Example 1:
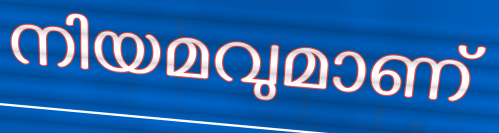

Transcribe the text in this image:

നിയമവുമാണ്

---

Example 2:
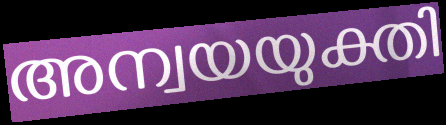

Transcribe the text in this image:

അന്വയയുക്തി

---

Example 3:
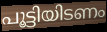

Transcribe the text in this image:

പൂട്ടിയിടണം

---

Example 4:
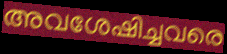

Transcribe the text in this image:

അവശേഷിച്ചവരെ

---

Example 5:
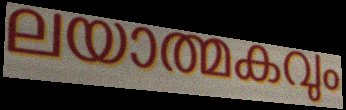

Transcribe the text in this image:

ലയാത്മകവും